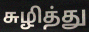
சுழித்து